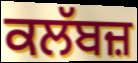
ਕਲੱਬਜ਼